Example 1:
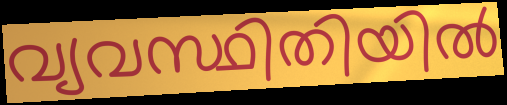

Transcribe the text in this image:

വ്യവസ്ഥിതിയിൽ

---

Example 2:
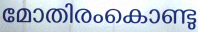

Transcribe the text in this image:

മോതിരംകൊണ്ടു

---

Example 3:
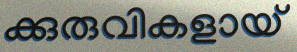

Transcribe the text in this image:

ക്കുരുവികളായ്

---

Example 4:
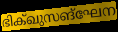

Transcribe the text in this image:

ഭിക്ഖുസങ്ഘേന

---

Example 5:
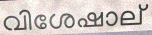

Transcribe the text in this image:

വിശേഷാല്